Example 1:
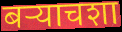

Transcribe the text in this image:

बऱ्याचशा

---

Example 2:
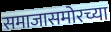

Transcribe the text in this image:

समाजासमोरच्या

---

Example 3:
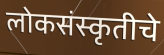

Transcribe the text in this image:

लोकसंस्कृतीचे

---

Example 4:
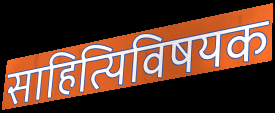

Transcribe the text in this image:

साहित्यिविषयक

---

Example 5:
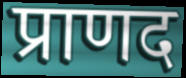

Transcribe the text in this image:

प्राणद